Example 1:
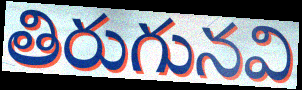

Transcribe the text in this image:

తిరుగునవి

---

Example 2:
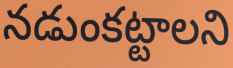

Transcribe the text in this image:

నడుంకట్టాలని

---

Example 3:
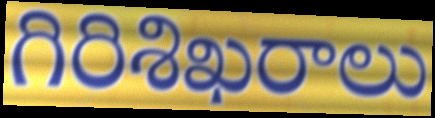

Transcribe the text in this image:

గిరిశిఖరాలు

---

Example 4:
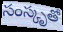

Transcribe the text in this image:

సంస్కృతో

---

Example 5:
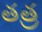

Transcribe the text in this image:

తత్ర